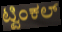
ಟ್ವಿಂಕಲ್